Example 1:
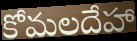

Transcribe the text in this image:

కోమలదేహా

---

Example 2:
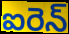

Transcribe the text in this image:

ఐరెన్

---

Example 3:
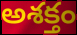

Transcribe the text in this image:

అశక్తం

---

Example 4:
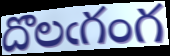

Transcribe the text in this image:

దొలఁగంగ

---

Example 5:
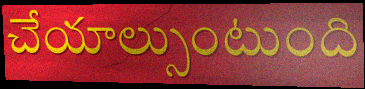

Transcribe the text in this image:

చేయాల్సుంటుంది